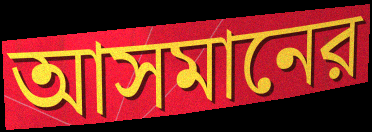
আসমানের